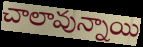
చాలావున్నాయి